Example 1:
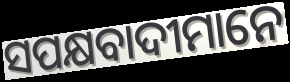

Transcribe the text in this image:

ସପକ୍ଷବାଦୀମାନେ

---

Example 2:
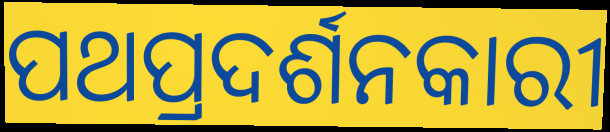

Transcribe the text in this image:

ପଥପ୍ରଦର୍ଶନକାରୀ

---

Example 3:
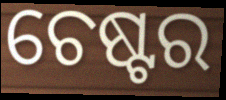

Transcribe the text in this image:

ଚେଷ୍ଟର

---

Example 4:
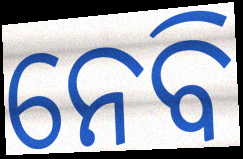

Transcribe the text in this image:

ନେବି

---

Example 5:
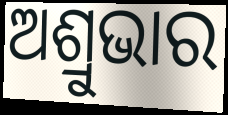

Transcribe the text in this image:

ଅଶ୍ରୁଭାର